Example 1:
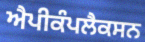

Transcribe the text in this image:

ਐਪੀਕੰਪਲੈਕਸਨ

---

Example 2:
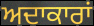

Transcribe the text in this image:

ਅਦਾਕਾਰਾਂ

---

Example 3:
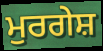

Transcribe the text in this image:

ਮੁਰਗੇਸ਼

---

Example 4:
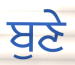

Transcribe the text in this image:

ਬੁਣੇ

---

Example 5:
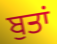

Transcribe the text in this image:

ਬੁਤਾਂ